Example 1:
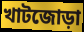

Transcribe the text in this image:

খাটজোড়া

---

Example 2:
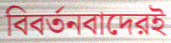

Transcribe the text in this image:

বিবর্তনবাদেরই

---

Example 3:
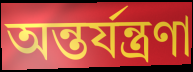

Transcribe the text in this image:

অন্তর্যন্ত্রণা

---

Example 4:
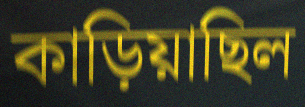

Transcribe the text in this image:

কাড়িয়াছিল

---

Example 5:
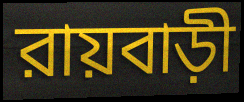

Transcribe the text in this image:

রায়বাড়ী